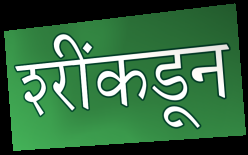
श्रींकडून